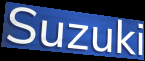
Suzuki